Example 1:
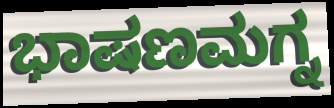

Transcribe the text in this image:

ಭಾಷಣಮಗ್ನ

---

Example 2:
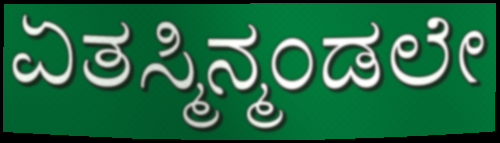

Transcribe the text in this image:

ಏತಸ್ಮಿನ್ಮಂಡಲೇ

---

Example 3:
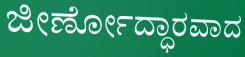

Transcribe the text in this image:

ಜೀರ್ಣೋದ್ಧಾರವಾದ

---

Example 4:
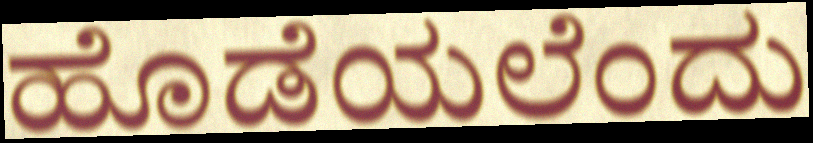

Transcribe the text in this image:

ಹೊಡೆಯಲೆಂದು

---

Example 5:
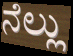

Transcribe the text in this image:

ನೆಲ್ಲು